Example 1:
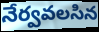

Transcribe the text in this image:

నేర్వవలసిన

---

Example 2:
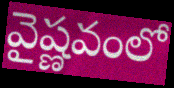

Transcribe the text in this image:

వైష్ణవంలో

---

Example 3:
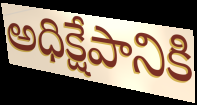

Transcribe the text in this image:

అధిక్షేపానికి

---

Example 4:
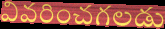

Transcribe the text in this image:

వివరించగలడు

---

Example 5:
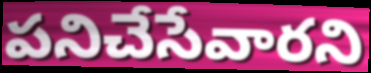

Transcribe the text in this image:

పనిచేసేవారని